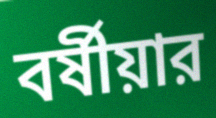
বর্ষীয়ার